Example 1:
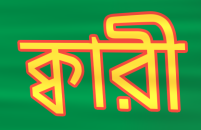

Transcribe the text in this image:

ক্বারী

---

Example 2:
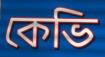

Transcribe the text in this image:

কেভি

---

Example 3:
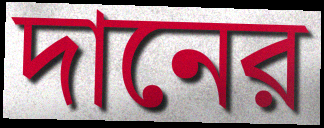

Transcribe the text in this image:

দানের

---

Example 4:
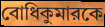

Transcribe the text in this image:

বোধিকুমারকে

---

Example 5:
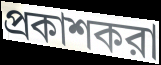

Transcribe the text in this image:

প্রকাশকরা